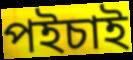
পইচাই